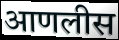
आणलीस